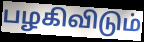
பழகிவிடும்